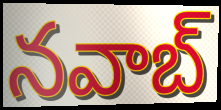
నవాబ్